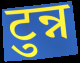
टुन्न